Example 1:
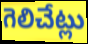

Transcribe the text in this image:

గెలిచేట్లు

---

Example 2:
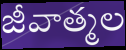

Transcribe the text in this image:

జీవాత్మల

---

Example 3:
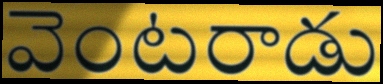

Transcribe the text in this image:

వెంటరాడు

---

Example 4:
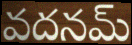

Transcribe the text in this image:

వదనమ్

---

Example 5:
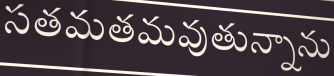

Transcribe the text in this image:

సతమతమవుతున్నాను